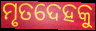
ମୃତଦେହକୁ